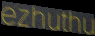
ezhuthu